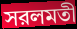
সরলমতী